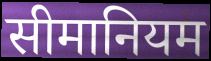
सीमानियम